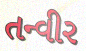
તન્વીર